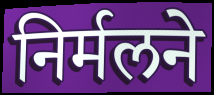
निर्मलने